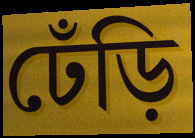
ঢেঁড়ি